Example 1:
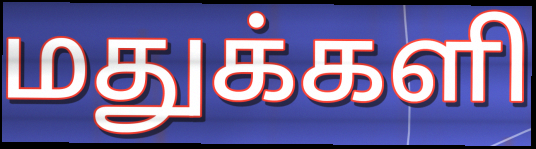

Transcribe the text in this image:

மதுக்களி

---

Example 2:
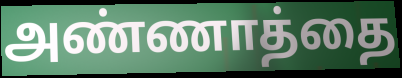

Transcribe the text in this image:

அண்ணாத்தை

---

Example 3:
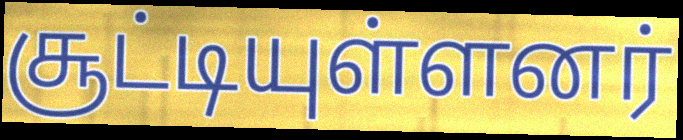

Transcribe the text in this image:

சூட்டியுள்ளனர்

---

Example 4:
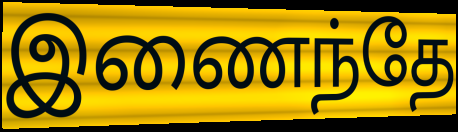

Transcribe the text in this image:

இணைந்தே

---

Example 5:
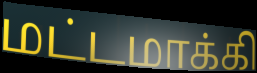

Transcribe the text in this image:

மட்டமாக்கி